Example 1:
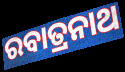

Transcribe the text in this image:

ରବାତ୍ରନାଥ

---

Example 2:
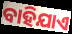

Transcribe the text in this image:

ବାହିଯାଏ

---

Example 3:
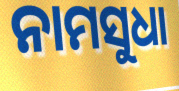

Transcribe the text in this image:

ନାମସୁଧା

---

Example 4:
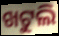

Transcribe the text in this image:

ଖଟୁଲି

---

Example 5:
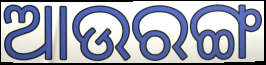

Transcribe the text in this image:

ଆଉରଙ୍ଗ